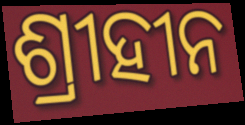
ଶ୍ରୀହୀନ